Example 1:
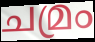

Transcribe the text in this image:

ചമ്രം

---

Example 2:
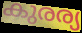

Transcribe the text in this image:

കുരര്യ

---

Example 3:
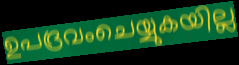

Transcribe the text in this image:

ഉപദ്രവംചെയ്യുകയില്ല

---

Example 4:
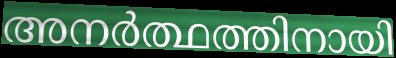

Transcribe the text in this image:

അനർത്ഥത്തിനായി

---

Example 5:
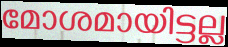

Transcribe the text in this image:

മോശമായിട്ടല്ല